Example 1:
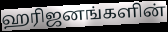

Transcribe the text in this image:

ஹரிஜனங்களின்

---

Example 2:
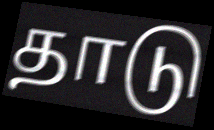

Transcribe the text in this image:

தாடு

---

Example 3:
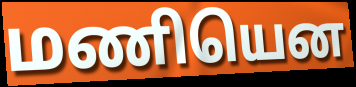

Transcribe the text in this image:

மணியென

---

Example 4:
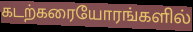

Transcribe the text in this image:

கடற்கரையோரங்களில்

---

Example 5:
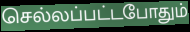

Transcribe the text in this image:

செல்லப்பட்டபோதும்